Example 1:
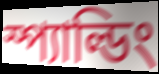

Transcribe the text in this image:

স্প্যাল্ডিং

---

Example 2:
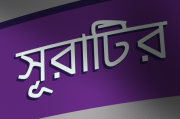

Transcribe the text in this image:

সূরাটির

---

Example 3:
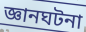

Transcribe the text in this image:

জ্ঞানঘটনা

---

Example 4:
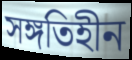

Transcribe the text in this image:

সঙ্গতিহীন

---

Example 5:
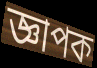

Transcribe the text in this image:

জ্ঞাপক